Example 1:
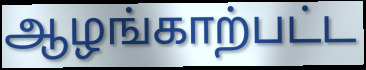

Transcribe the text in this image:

ஆழங்காற்பட்ட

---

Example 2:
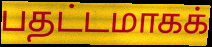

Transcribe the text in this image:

பதட்டமாகக்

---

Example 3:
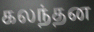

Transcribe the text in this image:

கலந்தன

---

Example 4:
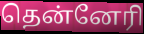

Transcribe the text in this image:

தென்னேரி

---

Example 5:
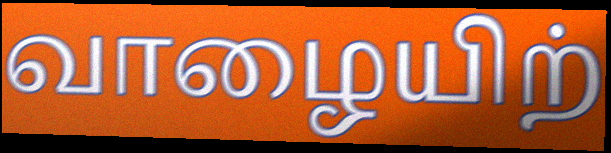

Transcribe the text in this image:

வாழையிற்